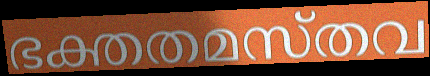
ഭക്തതമസ്തവ